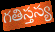
గతిస్తస్య